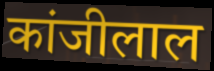
कांजीलाल